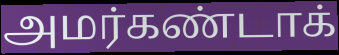
அமர்கண்டாக்